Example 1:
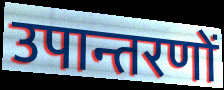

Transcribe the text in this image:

उपान्तरणों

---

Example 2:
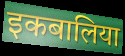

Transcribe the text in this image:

इकबालिया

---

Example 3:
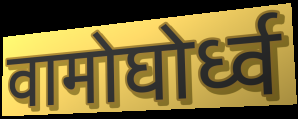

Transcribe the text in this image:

वामोघोर्ध्व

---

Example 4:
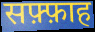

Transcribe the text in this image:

सफ़्फ़ाह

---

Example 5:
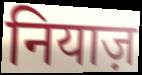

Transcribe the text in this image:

नियाज़